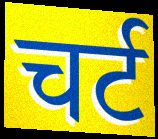
चर्ट